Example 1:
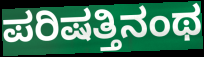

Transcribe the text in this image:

ಪರಿಷತ್ತಿನಂಥ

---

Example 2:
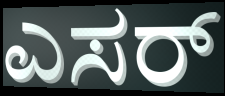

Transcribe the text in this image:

ಎಸರ್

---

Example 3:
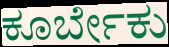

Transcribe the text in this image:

ಕೂರ್ಬೇಕು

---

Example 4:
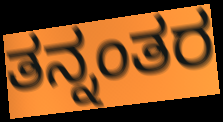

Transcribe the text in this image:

ತನ್ನಂತರ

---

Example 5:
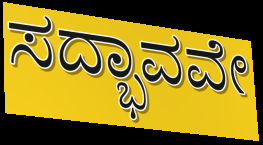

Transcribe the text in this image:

ಸದ್ಭಾವವೇ